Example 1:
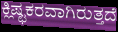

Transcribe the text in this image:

ಕ್ಲಿಷ್ಟಕರವಾಗಿರುತ್ತದೆ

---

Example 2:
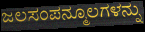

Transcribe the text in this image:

ಜಲಸಂಪನ್ಮೂಲಗಳನ್ನು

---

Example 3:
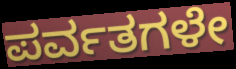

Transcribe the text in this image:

ಪರ್ವತಗಳೇ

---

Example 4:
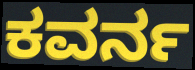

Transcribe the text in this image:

ಕವರ್ನ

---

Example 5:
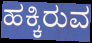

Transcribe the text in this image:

ಹಕ್ಕಿರುವ